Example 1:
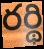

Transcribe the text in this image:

రర్థి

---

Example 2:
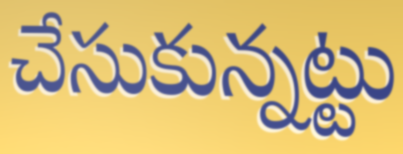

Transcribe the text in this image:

చేసుకున్నట్టు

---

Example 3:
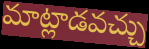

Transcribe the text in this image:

మాట్లాడవచ్చు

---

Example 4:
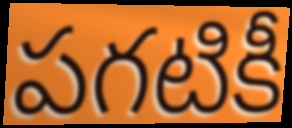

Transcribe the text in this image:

పగటికీ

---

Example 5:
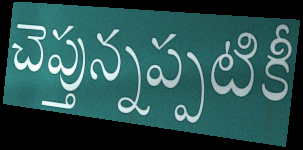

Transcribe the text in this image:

చెప్తున్నప్పటికీ